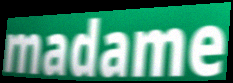
madame